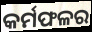
କର୍ମଫଳର